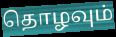
தொழவும்